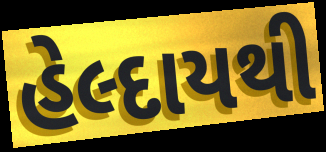
હેલ્દાયથી